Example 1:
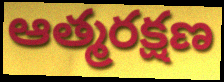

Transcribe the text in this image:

ఆత్మరక్షణ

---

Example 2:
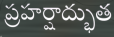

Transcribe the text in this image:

ప్రహర్షాద్భుత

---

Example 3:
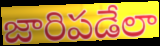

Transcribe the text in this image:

జారిపడేలా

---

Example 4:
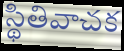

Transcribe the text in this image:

స్థితివాచక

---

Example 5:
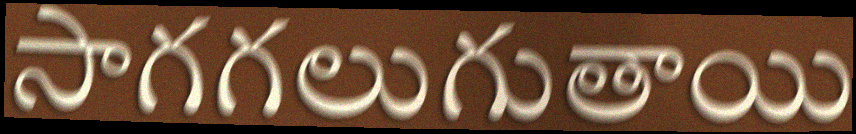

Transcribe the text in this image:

సాగగలుగుతాయి